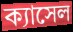
ক্যাসেল